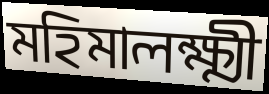
মহিমালক্ষ্মী